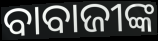
ବାବାଜୀଙ୍କ